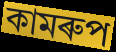
কামৰুপ